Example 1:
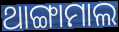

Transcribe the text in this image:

ଥାଙ୍ଗାମାଲ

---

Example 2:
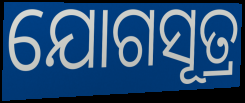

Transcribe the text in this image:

ଯୋଗସୂତ୍ର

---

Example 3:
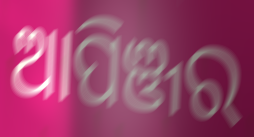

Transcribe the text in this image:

ଆପିଞ୍ଜର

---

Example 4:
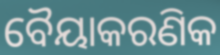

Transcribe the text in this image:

ବୈୟାକରଣିକ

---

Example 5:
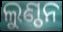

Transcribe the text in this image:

ଲୁଣ୍ଠନ